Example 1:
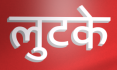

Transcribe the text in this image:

लुटके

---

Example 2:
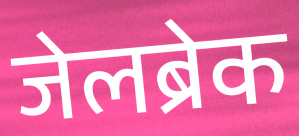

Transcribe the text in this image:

जेलब्रेक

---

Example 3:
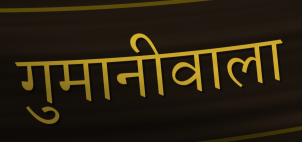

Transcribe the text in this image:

गुमानीवाला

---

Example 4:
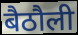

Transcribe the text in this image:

बैठौली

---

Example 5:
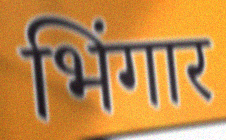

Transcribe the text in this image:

भिंगार